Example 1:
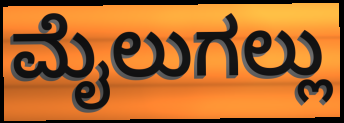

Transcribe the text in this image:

ಮೈಲುಗಲ್ಲು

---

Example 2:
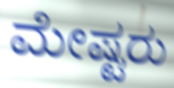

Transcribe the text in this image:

ಮೇಷ್ಟರು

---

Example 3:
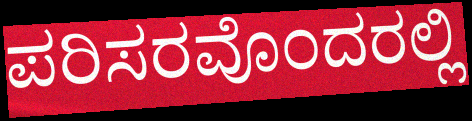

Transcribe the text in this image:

ಪರಿಸರವೊಂದರಲ್ಲಿ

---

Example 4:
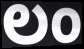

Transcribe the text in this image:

ಲಂ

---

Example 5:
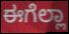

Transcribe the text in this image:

ಈಗೆಲ್ಲಾ